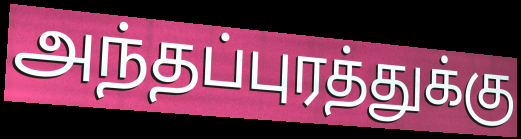
அந்தப்புரத்துக்கு